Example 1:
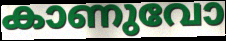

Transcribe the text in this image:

കാണുവോ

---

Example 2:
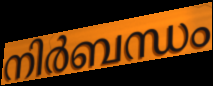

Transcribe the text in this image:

നിർബന്ധം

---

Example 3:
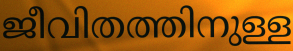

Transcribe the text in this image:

ജീവിതത്തിനുള്ള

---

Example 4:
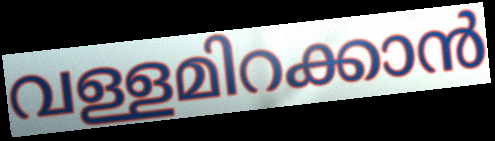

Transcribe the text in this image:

വള്ളമിറക്കാൻ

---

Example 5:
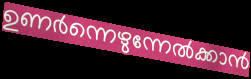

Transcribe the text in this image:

ഉണർന്നെഴുന്നേൽക്കാൻ